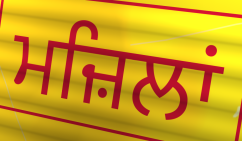
ਮਜ਼ਿਲਾਂ